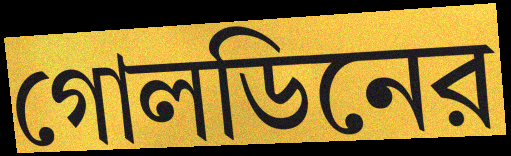
গোলডিনের